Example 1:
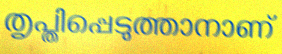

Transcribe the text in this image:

തൃപ്തിപ്പെടുത്താനാണ്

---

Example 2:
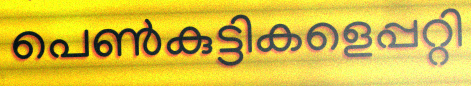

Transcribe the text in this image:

പെൺകുട്ടികളെപ്പറ്റി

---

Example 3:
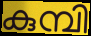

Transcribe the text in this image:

കുമ്പി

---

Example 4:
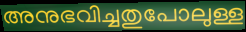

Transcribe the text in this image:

അനുഭവിച്ചതുപോലുള്ള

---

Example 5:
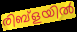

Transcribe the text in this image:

രിബ്ളയിൽ